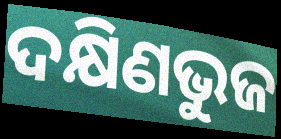
ଦକ୍ଷିଣଭୁଜ